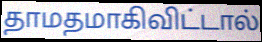
தாமதமாகிவிட்டால்